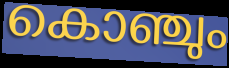
കൊഞ്ചും